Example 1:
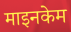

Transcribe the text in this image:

माइनकेम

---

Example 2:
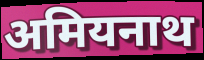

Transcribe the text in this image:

अमियनाथ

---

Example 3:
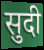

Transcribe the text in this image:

सुदी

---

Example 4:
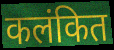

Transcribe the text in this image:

कलंकित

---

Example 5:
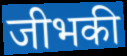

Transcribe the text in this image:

जीभकी